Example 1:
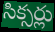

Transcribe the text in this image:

సిక్సర్లు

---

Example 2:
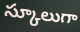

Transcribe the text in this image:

స్కూలుగా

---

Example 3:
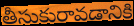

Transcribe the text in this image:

తీసుకురావడానికి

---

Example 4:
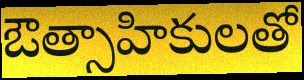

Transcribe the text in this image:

ఔత్సాహికులతో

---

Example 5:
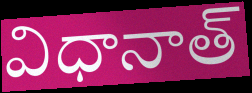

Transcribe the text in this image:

విధానాత్